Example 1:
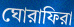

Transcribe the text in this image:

ঘোরাফিরা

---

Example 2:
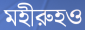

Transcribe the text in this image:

মহীরুহও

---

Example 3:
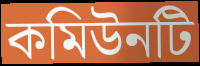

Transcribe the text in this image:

কমিউনটি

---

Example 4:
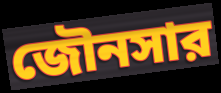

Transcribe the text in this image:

জৌনসার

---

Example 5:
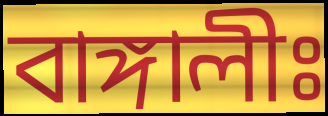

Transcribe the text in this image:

বাঙ্গালীঃ